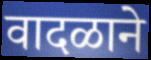
वादळाने